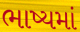
ભાષ્યમાં